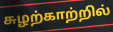
சுழற்காற்றில்